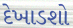
દેખાડશો